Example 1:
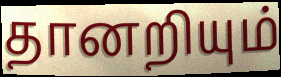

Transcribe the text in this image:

தானறியும்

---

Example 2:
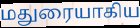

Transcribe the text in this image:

மதுரையாகிய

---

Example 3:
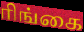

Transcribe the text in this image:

ரிங்கை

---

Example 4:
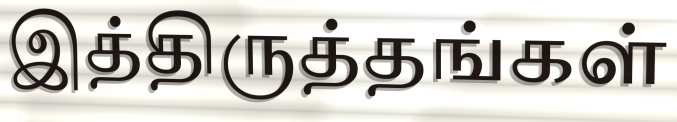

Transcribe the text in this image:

இத்திருத்தங்கள்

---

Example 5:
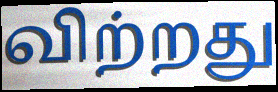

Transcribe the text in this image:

விற்றது